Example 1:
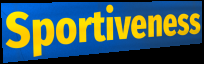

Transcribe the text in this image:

Sportiveness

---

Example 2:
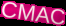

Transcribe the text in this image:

CMAC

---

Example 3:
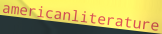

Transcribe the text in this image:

americanliterature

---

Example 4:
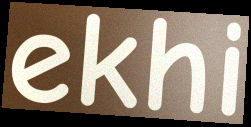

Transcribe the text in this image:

ekhi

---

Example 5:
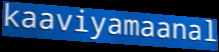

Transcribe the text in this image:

kaaviyamaanal